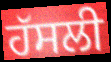
ਹੱਸਲੀ